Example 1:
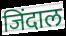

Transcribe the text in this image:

जिंदाल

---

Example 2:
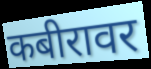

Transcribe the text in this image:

कबीरावर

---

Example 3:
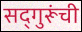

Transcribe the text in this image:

सद्‌गुरूंची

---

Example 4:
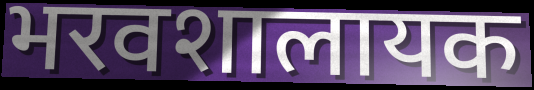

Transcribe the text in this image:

भरवशालायक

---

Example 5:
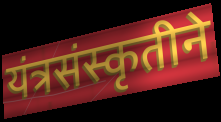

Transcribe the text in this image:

यंत्रसंस्कृतीने